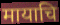
मायाचि